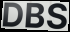
DBS